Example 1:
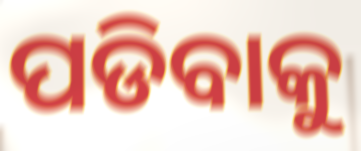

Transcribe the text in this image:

ପଡିବାକୁ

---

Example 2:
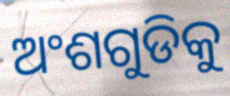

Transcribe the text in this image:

ଅଂଶଗୁଡିକୁ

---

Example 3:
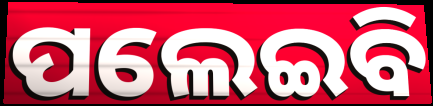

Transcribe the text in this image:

ପଲେଇବି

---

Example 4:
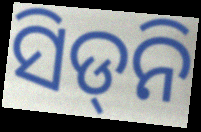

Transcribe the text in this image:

ସିଡ୍‍ନି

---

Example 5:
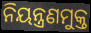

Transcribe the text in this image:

ନିୟନ୍ତ୍ରଣମୁକ୍ତ